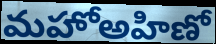
మహోఅహిణో